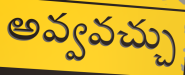
అవ్వవచ్చు